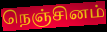
நெஞ்சினம்